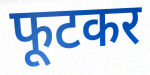
फूटकर